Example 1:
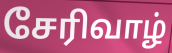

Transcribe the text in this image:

சேரிவாழ்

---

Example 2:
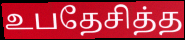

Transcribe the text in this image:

உபதேசித்த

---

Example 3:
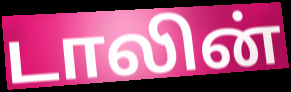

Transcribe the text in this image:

டாலின்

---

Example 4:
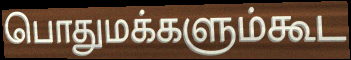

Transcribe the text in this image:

பொதுமக்களும்கூட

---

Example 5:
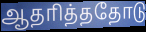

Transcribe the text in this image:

ஆதரித்ததோடு